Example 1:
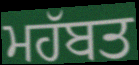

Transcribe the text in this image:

ਮਹੱਬਤ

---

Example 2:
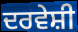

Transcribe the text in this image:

ਦਰਵੇਸ਼ੀ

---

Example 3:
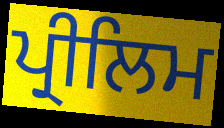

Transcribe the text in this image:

ਪ੍ਰੀਲਿਮ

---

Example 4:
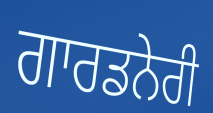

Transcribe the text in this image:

ਗਾਰਡਨੇਰੀ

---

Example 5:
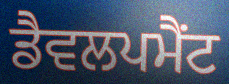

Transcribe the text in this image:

ਡੈਵਲਪਮੈਂਟ